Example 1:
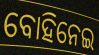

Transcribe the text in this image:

ବୋହିନେଇ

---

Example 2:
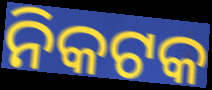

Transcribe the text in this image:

ନିକଟକ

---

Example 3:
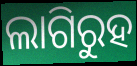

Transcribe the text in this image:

ଲାଗିରୁହ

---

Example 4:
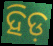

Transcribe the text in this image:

ହିଡ଼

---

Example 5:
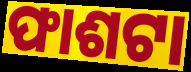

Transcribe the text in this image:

ଫାଶଟା